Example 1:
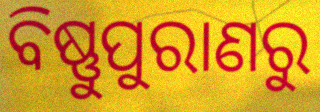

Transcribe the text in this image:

ବିଷ୍ଣୁପୁରାଣରୁ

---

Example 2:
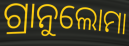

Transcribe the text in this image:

ଗ୍ରାନୁଲୋମା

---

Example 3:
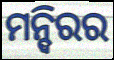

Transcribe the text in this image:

ମନ୍ଦିରର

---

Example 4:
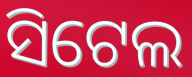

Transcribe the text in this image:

ସିଟେଲ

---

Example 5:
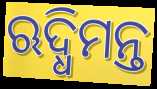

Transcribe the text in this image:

ଋଦ୍ଧିମନ୍ତ